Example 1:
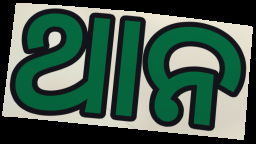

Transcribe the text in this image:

ଥାନ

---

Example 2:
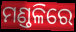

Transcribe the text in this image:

ମଣ୍ଡଳିରେ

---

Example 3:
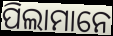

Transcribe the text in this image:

ପିଲାମାନେ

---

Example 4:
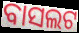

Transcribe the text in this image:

ବାସଲଟ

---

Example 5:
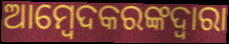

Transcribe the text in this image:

ଆମ୍ବେଦକରଙ୍କଦ୍ୱାରା